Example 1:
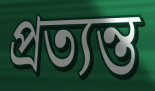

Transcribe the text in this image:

প্রত্যন্ত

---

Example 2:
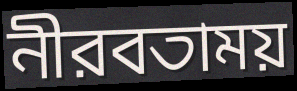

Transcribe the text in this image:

নীরবতাময়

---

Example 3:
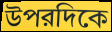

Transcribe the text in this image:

উপরদিকে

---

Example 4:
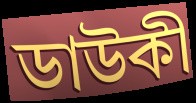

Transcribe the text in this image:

ডাউকী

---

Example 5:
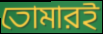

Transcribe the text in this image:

তোমারই